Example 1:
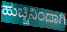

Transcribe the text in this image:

ಹುಚ್ಚಿನಿಂದಾಗಿ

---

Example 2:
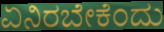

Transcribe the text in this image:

ಏನಿರಬೇಕೆಂದು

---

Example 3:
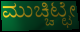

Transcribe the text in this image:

ಮುಚ್ಚಿಟ್ಟೇ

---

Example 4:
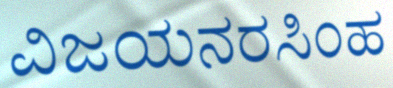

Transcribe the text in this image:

ವಿಜಯನರಸಿಂಹ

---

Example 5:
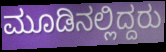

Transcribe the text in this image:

ಮೂಡಿನಲ್ಲಿದ್ದರು